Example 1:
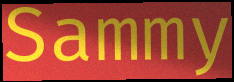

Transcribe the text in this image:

Sammy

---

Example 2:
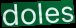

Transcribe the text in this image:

doles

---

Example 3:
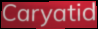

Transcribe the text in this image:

Caryatid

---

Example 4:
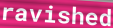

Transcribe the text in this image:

ravished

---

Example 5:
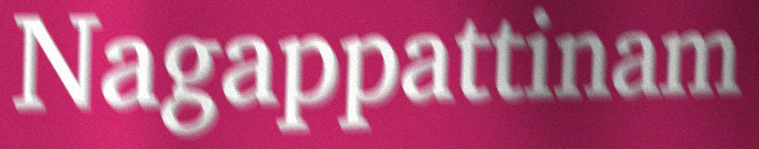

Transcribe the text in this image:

Nagappattinam